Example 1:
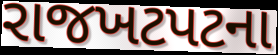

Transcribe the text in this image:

રાજખટપટના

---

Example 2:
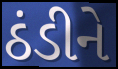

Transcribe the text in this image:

ઠંડીને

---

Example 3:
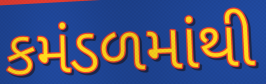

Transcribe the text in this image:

કમંડળમાંથી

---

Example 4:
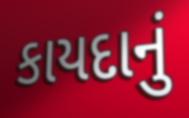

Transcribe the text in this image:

કાયદાનું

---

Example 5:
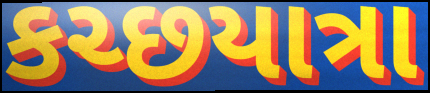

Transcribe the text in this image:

કચ્છયાત્રા